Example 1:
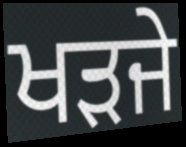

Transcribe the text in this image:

ਖੜਜੇ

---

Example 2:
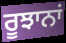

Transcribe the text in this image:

ਰੂਝਾਨਾਂ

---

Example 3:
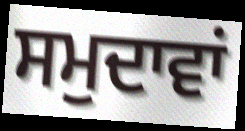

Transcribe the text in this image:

ਸਮੁਦਾਵਾਂ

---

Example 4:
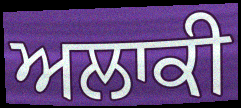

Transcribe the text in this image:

ਅਲਾਕੀ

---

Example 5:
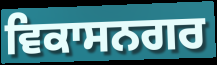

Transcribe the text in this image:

ਵਿਕਾਸਨਗਰ